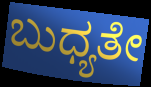
ಬುಧ್ಯತೇ